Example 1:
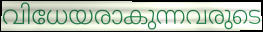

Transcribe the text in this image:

വിധേയരാകുന്നവരുടെ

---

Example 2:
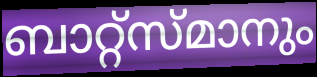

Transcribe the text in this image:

ബാറ്റ്സ്മാനും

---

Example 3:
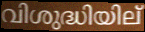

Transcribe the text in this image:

വിശുദ്ധിയില്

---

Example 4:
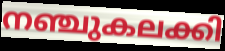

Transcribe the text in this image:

നഞ്ചുകലക്കി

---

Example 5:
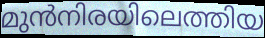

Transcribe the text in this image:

മുൻനിരയിലെത്തിയ